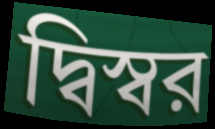
দ্বিস্বর